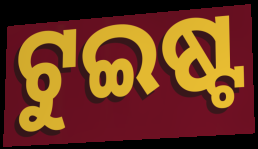
ଟୁଇଷ୍ଟ